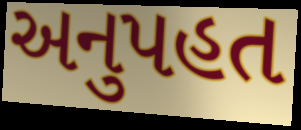
અનુપહત